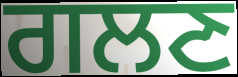
ਗਲਣ